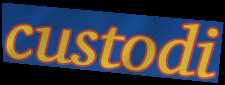
custodi